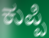
ಕುಪ್ಪಿ